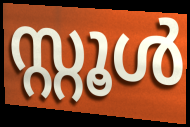
സ്റ്റൂൾ